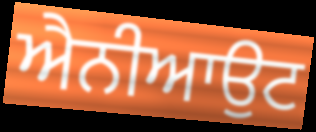
ਐਨੀਆਉਟ